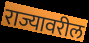
राज्यावरील